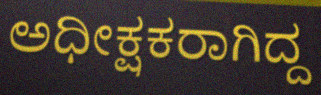
ಅಧೀಕ್ಷಕರಾಗಿದ್ದ